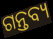
ଗନ୍ତବ୍ୟ